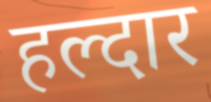
हल्दार